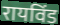
रायविंड